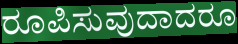
ರೂಪಿಸುವುದಾದರೂ